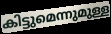
കിട്ടുമെന്നുമുള്ള